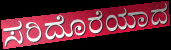
ಸರಿದೊರೆಯಾದ